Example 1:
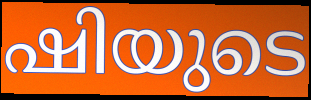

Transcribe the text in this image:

ഷിയുടെ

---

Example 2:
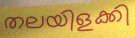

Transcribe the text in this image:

തലയിളക്കി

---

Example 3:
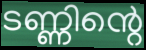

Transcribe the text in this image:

ടണ്ണിന്റെ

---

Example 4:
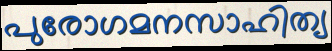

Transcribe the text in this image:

പുരോഗമനസാഹിത്യ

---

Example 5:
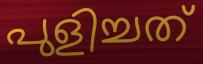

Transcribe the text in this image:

പുളിച്ചത്